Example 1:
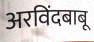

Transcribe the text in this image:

अरविंदबाबू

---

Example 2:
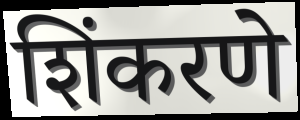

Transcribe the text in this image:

शिंकरणे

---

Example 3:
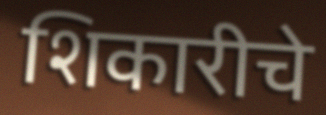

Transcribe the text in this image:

शिकारीचे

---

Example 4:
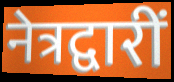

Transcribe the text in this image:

नेत्रद्वारीं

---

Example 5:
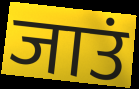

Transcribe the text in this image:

जाउं